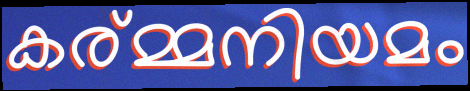
കര്മ്മനിയമം